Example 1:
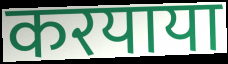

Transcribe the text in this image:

करयाया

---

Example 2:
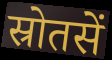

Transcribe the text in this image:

स्रोतसें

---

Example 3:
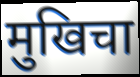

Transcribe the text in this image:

मुखिचा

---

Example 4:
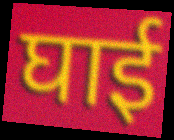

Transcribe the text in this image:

घाई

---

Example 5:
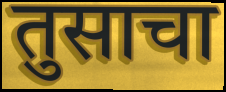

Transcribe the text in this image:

तुसाचा